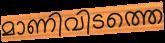
മാണിവിടത്തെ